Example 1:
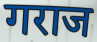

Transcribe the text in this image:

गराज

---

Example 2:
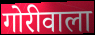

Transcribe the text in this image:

गोरीवाला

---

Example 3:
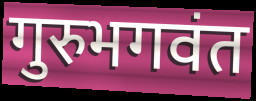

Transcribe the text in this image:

गुरुभगवंत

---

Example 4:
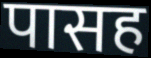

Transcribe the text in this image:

पासह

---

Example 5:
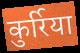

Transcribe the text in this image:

कुर्रिया